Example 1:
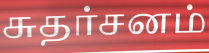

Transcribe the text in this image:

சுதர்சனம்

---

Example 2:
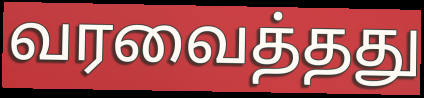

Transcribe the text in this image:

வரவைத்தது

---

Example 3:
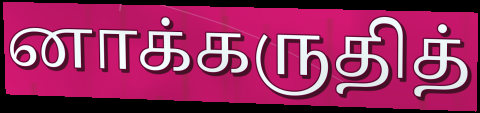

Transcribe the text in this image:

னாக்கருதித்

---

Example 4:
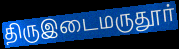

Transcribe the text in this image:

திருஇடைமருதூர்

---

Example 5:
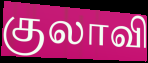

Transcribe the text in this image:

குலாவி